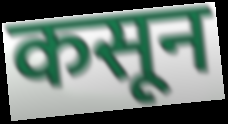
कसून